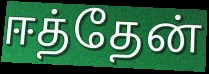
ஈத்தேன்